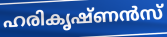
ഹരികൃഷ്ണൻസ്